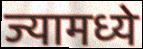
ज्यामध्ये